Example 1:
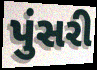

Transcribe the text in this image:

પુંસરી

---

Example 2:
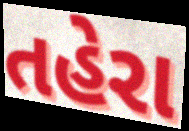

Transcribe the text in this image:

તહેરા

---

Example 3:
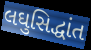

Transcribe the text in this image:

લઘુસિદ્ધાંત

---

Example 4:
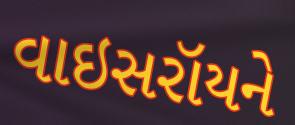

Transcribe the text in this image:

વાઇસરૉયને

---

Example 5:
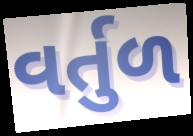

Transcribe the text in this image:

વર્તુળ